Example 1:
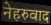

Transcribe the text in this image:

नेहरुवाद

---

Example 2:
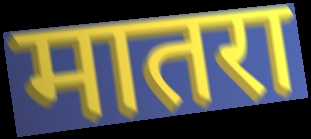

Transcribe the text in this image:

मातरा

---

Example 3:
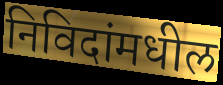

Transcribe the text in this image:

निविदांमधील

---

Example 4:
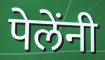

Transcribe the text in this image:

पेलेंनी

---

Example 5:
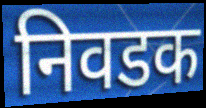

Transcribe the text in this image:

निवडक